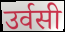
उर्वसी